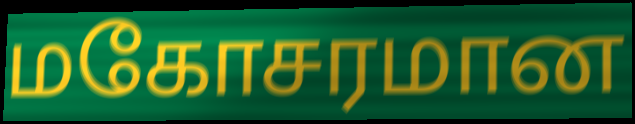
மகோசரமான